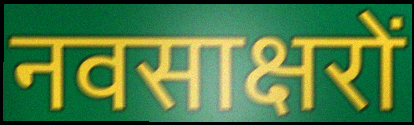
नवसाक्षरों